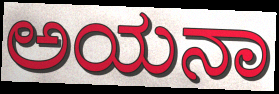
ಅಯನಾ